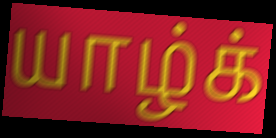
யாழ்க்